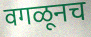
वगळूनच